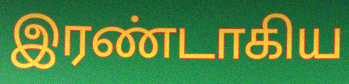
இரண்டாகிய